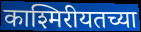
काश्मिरीयतच्या